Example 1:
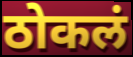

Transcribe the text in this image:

ठोकलं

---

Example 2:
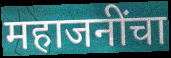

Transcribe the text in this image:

महाजनींचा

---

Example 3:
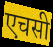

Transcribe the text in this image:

एचसी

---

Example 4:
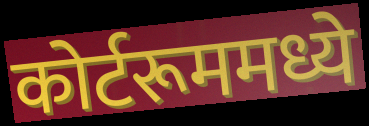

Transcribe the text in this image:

कोर्टरूममध्ये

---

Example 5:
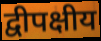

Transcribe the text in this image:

द्वीपक्षीय